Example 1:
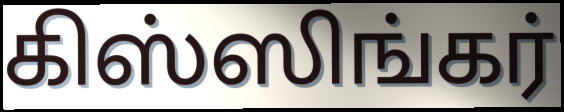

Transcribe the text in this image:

கிஸ்ஸிங்கர்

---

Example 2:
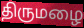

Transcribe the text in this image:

திருமழை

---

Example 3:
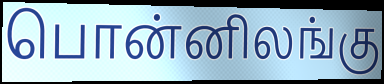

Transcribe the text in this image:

பொன்னிலங்கு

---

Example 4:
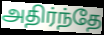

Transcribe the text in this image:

அதிர்ந்தே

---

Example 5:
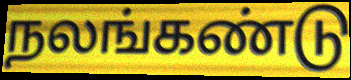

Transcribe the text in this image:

நலங்கண்டு